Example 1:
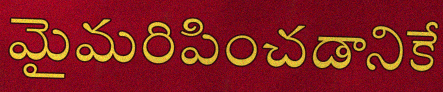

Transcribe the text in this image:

మైమరిపించడానికే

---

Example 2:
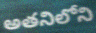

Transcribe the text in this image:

అతనిలోని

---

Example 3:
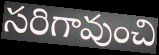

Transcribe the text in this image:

సరిగావుంచి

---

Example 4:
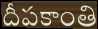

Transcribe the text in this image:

దీపకాంతి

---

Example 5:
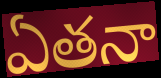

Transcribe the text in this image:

ఏతనా